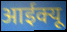
आईक्यू